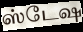
ஸ்டேஷ